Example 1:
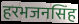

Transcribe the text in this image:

हरभजनसिंह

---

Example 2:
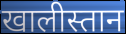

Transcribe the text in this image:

खालीस्तान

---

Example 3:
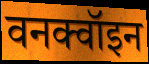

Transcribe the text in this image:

वनक्वॉइन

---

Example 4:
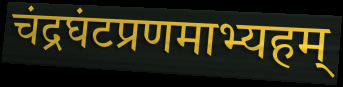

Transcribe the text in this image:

चंद्रघंटप्रणमाभ्यहम्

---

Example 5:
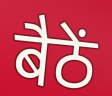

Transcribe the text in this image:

बैठें